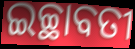
ଇଚ୍ଛାବତୀ